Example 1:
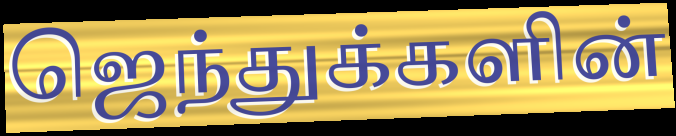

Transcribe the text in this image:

ஜெந்துக்களின்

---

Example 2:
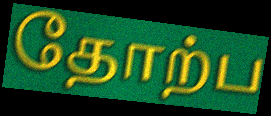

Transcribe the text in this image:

தோற்ப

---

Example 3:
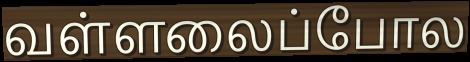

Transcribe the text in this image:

வள்ளலைப்போல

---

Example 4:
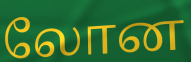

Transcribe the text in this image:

லோன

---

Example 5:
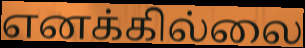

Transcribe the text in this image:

எனக்கில்லை